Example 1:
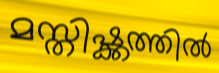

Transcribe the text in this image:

മസ്തിഷ്ക്കത്തിൽ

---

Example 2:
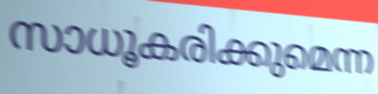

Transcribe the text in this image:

സാധൂകരിക്കുമെന്ന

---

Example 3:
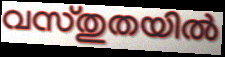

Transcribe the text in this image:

വസ്തുതയിൽ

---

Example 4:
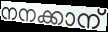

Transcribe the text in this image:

നനക്കാന്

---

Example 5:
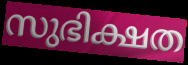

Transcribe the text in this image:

സുഭിക്ഷത